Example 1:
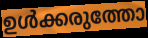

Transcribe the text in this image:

ഉൾക്കരുത്തോ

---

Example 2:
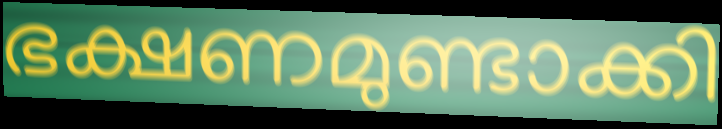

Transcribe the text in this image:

ഭക്ഷണമുണ്ടാക്കി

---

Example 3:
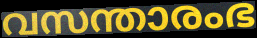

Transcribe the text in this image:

വസന്താരംഭ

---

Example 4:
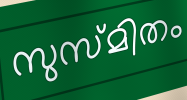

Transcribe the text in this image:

സുസ്മിതം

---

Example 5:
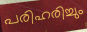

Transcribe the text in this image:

പരിഹരിച്ചും